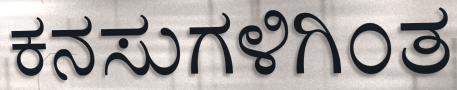
ಕನಸುಗಳಿಗಿಂತ